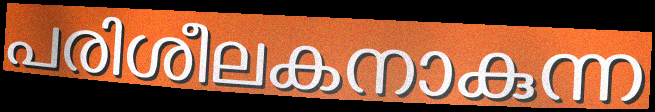
പരിശീലകനാകുന്ന